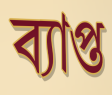
ব্য়াপ্ত